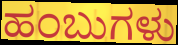
ಹಂಬುಗಳು